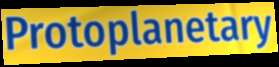
Protoplanetary